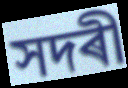
সদৰী